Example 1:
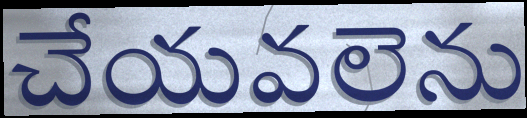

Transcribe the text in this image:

చేయవలెను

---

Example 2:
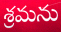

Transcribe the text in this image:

శ్రమను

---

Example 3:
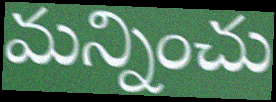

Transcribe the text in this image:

మన్నించు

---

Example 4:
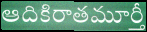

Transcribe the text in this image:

ఆదికిరాతమూర్తీ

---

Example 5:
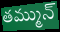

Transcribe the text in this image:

తమ్మున్